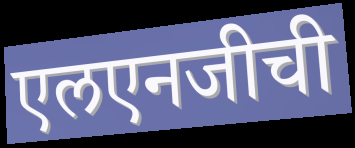
एलएनजीची